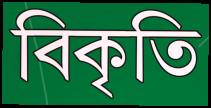
বিকৃতি